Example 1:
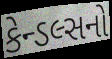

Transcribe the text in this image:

કેન્ડલ્સનો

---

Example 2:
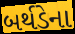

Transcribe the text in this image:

બર્થડેના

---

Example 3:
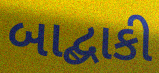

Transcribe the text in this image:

બાદ્બાકી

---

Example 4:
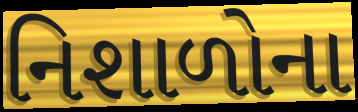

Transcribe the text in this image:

નિશાળોના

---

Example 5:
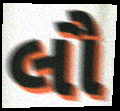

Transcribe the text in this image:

લૌ